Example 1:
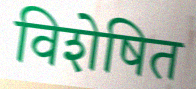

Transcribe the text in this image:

विशेषित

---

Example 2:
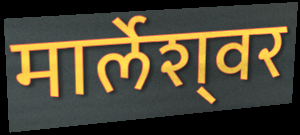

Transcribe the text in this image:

मार्लेश्वर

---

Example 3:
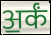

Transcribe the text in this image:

अ॒र्कं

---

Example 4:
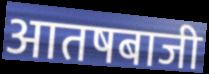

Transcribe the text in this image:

आतषबाजी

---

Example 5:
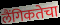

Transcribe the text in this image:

लैंगिकतेचा